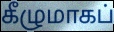
கீழுமாகப்